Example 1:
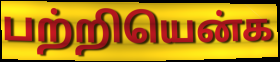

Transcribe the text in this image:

பற்றியென்க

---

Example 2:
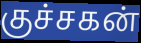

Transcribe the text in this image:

குச்சகன்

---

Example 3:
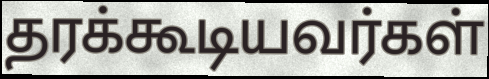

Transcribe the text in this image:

தரக்கூடியவர்கள்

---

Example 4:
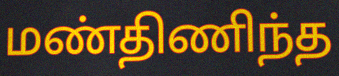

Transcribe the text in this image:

மண்திணிந்த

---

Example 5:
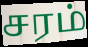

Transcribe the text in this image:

சரம்